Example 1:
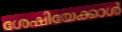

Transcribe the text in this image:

ശേഷിയേക്കാൾ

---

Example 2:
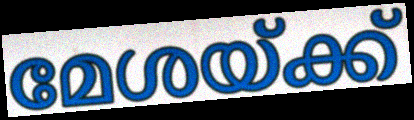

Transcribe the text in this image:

മേശയ്ക്ക്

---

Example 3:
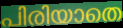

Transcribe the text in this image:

പിരിയാതെ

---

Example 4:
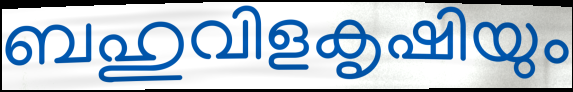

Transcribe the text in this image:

ബഹുവിളകൃഷിയും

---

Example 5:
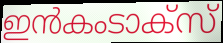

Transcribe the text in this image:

ഇൻകംടാക്സ്